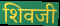
शिवजी